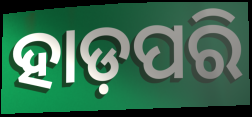
ହାଡ଼ପରି